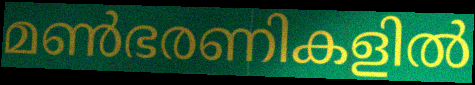
മൺഭരണികളിൽ